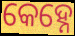
କେହ୍ନେ